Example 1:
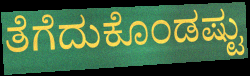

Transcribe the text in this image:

ತೆಗೆದುಕೊಂಡಷ್ಟು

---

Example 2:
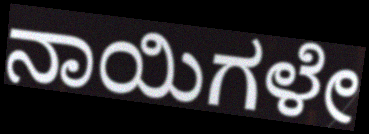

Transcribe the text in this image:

ನಾಯಿಗಳೇ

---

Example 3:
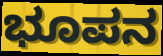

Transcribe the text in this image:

ಭೂಪನ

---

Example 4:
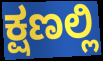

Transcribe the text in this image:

ಕ್ಷಣಲ್ಲಿ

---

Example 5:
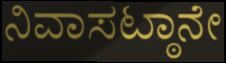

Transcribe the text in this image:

ನಿವಾಸಟ್ಠಾನೇ